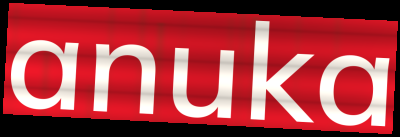
anuka